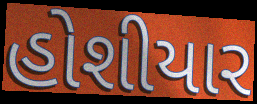
હોશીયાર